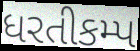
ધરતીકમ્પ